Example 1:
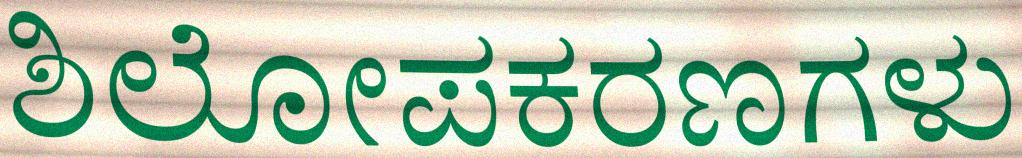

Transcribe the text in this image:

ಶಿಲೋಪಕರಣಗಳು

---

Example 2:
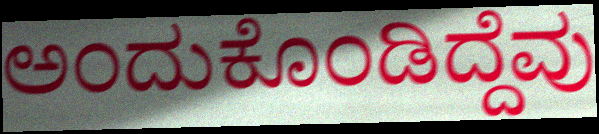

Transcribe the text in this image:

ಅಂದುಕೊಂಡಿದ್ದೆವು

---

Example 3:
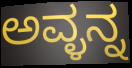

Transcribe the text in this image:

ಅವ್ಳನ್ನ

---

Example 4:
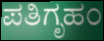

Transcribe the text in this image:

ಪತಿಗೃಹಂ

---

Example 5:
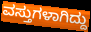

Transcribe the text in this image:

ವಸ್ತುಗಳಾಗಿದ್ದು